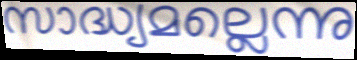
സാദ്ധ്യമല്ലെന്നു